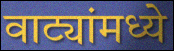
वाट्यांमध्ये